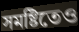
সমষ্টিতেও